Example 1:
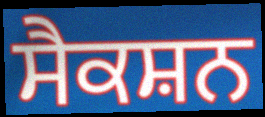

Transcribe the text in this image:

ਸੈਕਸ਼ਨ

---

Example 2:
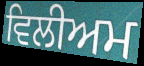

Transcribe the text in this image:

ਵਿਲੀਅਮ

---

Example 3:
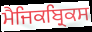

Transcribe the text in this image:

ਮੈਜਿਕਬ੍ਰਿਕਸ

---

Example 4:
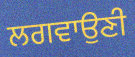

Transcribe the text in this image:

ਲਗਵਾਉਣੀ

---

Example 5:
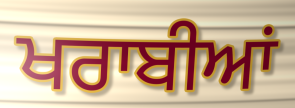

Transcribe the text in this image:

ਖਰਾਬੀਆਂ